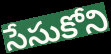
సేసుకోని